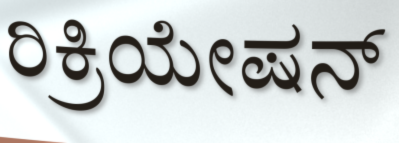
ರಿಕ್ರಿಯೇಷನ್